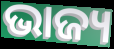
ଭାଜ୍ୟ